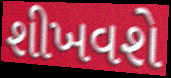
શીખવશે